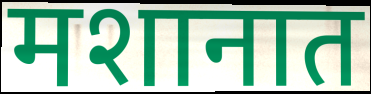
मशानात